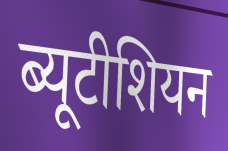
ब्यूटीशियन